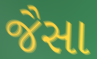
જૈસા